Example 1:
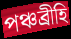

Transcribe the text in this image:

পঞ্চব্রীহি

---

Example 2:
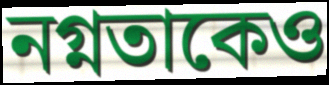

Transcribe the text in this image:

নগ্নতাকেও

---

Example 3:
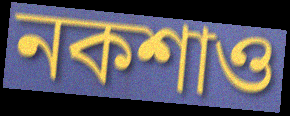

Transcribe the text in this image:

নকশাও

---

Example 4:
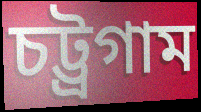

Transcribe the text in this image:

চট্ট্রগাম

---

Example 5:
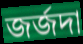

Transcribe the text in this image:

জর্জদা